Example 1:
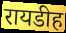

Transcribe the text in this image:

रायडीह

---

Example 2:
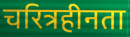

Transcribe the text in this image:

चरित्रहीनता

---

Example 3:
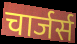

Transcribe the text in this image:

चार्जर्स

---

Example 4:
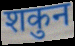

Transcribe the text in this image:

शकुन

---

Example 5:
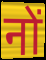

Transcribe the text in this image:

नों